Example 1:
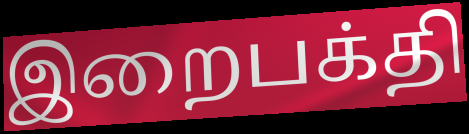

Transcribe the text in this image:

இறைபக்தி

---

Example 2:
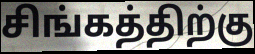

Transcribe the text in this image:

சிங்கத்திற்கு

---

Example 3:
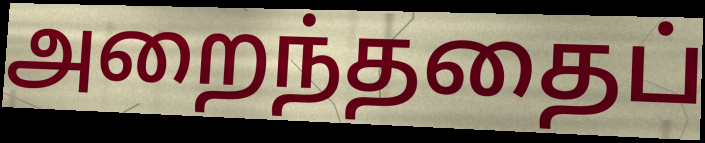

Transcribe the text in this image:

அறைந்ததைப்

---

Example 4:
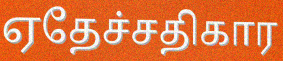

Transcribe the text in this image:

ஏதேச்சதிகார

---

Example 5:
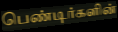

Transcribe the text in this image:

பெண்டிர்களின்